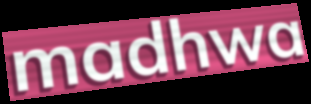
madhwa